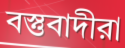
বস্তুবাদীরা